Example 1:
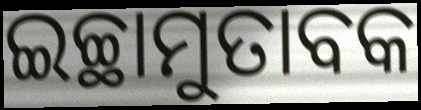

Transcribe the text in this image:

ଇଚ୍ଛାମୁତାବକ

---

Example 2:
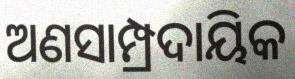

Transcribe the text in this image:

ଅଣସାମ୍ପ୍ରଦାୟିକ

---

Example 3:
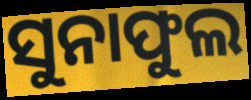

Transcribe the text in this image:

ସୁନାଫୁଲ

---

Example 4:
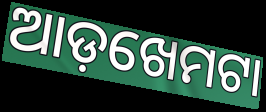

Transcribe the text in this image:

ଆଡ଼ଖେମଟା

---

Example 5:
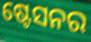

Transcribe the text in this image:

ଷ୍ଟେସନର